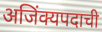
अजिंक्यपदाची